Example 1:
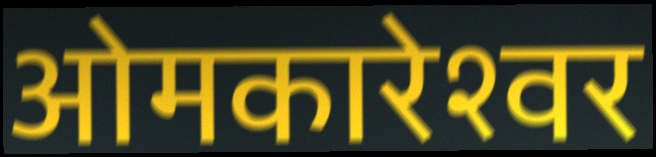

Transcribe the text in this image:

ओमकारेश्वर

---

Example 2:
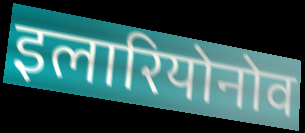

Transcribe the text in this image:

इलारियोनोव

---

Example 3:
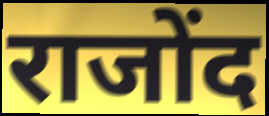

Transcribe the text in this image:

राजोंद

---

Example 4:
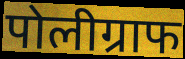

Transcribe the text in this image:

पोलीग्राफ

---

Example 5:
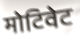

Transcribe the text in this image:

मोटिवेट